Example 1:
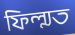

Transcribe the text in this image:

ফিল্মত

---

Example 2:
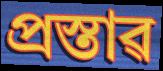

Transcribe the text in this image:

প্ৰস্তাৱ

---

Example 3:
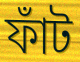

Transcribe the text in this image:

ফাঁট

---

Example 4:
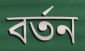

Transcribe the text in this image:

বৰ্তন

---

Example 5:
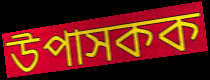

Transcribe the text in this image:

উপাসকক